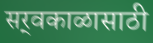
सर्वकाळासाठी